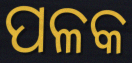
ପଳକ